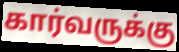
கார்வருக்கு